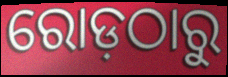
ରୋଡ଼ଠାରୁ